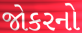
જોકરનો